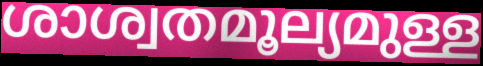
ശാശ്വതമൂല്യമുള്ള